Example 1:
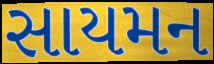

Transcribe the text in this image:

સાયમન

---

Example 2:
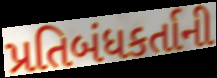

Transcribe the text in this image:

પ્રતિબંધકર્તાની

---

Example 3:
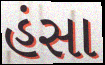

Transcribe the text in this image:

હંસા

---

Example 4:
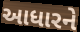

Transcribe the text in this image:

આધારને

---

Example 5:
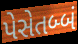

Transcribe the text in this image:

પેસેતબ્બં